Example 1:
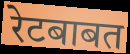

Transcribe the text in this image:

रेटबाबत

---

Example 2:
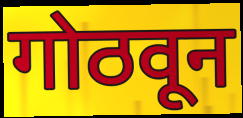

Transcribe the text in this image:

गोठवून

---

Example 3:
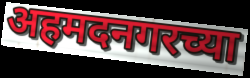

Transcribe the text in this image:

अहमदनगरच्या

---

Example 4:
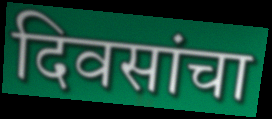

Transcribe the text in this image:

दिवसांचा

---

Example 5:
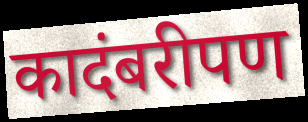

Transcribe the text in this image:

कादंबरीपण